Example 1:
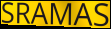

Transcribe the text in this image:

SRAMAS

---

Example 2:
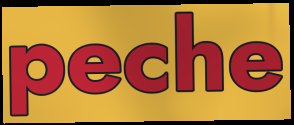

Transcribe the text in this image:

peche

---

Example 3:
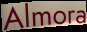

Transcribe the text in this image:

Almora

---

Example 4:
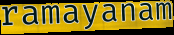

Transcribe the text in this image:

ramayanam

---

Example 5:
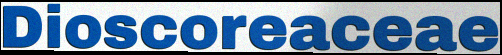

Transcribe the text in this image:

Dioscoreaceae